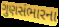
ગુણસંભારના